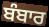
ਬੰਬਾਰ